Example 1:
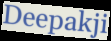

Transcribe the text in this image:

Deepakji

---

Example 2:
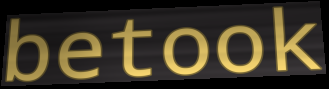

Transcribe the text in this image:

betook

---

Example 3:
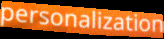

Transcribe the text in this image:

personalization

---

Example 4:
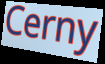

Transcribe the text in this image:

Cerny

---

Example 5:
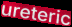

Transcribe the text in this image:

ureteric